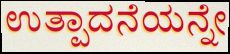
ಉತ್ಪಾದನೆಯನ್ನೇ